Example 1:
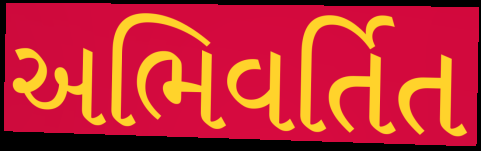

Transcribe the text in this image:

અભિવર્તિત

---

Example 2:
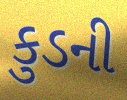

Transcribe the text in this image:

કુડની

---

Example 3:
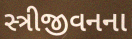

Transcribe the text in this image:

સ્ત્રીજીવનના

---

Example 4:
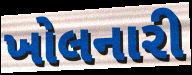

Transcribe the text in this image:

ખોલનારી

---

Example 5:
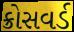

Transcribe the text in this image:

ક્રોસવર્ડ